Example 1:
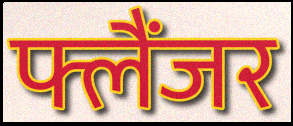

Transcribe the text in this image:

फ्लैंजर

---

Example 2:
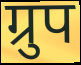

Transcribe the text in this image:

ग्रुप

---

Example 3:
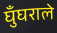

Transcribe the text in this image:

घुँघराले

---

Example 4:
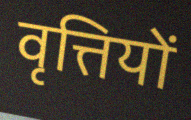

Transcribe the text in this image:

वृत्तियों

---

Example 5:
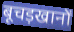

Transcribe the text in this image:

बूचड़खानों